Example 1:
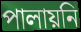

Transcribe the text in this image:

পালায়নি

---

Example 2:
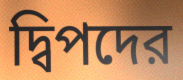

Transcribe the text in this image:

দ্বিপদের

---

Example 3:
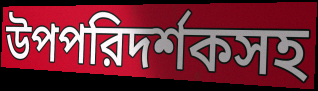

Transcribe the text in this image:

উপপরিদর্শকসহ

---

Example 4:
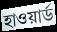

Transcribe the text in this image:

হাওয়ার্ড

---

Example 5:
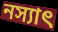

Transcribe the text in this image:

নস্যাৎ